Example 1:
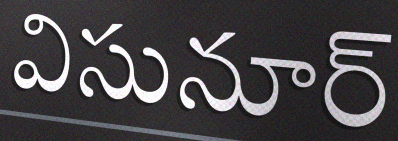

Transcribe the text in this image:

విసునూర్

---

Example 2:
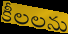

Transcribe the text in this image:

కీలలను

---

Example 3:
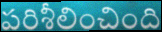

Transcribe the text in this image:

పరిశీలించింది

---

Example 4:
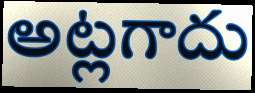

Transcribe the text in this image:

అట్లగాదు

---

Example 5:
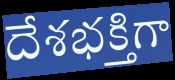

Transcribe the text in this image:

దేశభక్తిగా